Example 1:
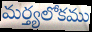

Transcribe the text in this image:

మర్త్యలోకము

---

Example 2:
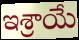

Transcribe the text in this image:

ఇశ్రాయే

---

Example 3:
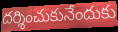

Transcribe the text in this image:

దర్శించుకునేందుకు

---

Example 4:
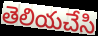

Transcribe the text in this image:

తెలియచేసి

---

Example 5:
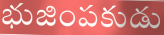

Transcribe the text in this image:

భుజింపకుడు